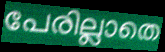
പേരില്ലാതെ